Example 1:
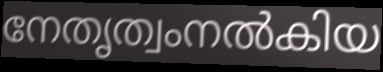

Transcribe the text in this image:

നേതൃത്വംനൽകിയ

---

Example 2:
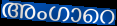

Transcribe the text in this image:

അംഗാറെ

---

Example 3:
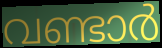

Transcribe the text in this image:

വണ്ടാർ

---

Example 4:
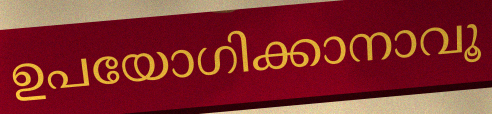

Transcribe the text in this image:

ഉപയോഗിക്കാനാവൂ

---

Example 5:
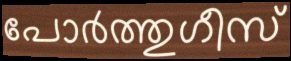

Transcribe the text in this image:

പോർത്തുഗീസ്